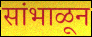
सांभाळून